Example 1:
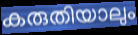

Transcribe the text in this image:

കരുതിയാലും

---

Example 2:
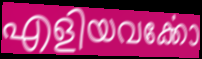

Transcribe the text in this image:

എളിയവൎക്കോ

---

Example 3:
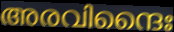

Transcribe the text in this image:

അരവിന്ദൈഃ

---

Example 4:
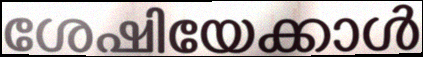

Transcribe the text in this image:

ശേഷിയേക്കാൾ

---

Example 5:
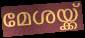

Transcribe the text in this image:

മേശയ്ക്ക്